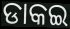
ଡାକଇ